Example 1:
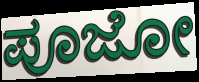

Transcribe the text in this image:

ಪೂಜೋ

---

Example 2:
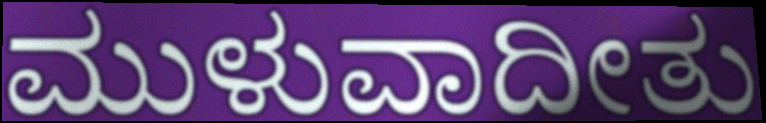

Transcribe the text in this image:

ಮುಳುವಾದೀತು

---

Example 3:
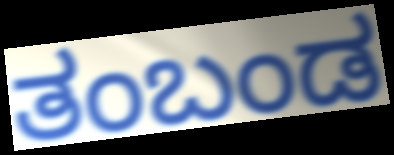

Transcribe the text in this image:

ತಂಬಂಡ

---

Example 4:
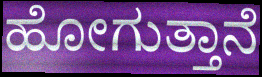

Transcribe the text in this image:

ಹೋಗುತ್ತಾನೆ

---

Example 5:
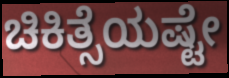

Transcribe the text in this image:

ಚಿಕಿತ್ಸೆಯಷ್ಟೇ